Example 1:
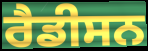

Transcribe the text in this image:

ਰੈਡੀਸਨ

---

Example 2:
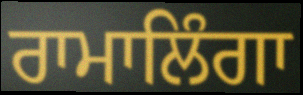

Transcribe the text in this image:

ਰਾਮਾਲਿੰਗਾ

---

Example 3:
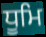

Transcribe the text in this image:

ਧੂਮਿ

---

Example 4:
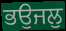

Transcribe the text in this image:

ਭਉਜਲੁ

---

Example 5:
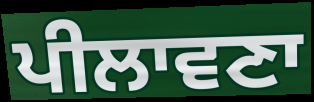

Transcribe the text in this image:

ਪੀਲਾਵਣਾ